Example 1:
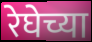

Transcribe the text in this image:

रेघेच्या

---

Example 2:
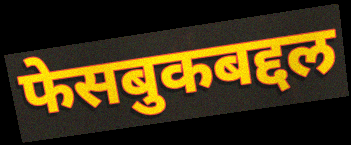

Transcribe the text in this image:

फेसबुकबद्दल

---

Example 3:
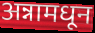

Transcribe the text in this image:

अन्नामधून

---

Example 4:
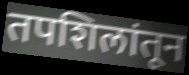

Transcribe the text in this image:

तपशिलांतून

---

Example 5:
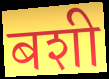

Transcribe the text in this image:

बशी